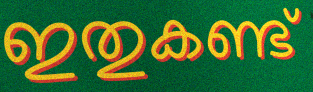
ഇതുകണ്ട്